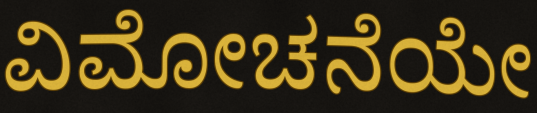
ವಿಮೋಚನೆಯೇ